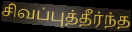
சிவப்புத்தீர்ந்த